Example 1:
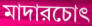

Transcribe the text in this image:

মাদারচোৎ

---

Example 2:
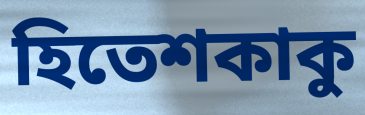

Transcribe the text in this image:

হিতেশকাকু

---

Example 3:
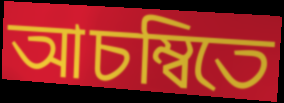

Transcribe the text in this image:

আচম্বিতে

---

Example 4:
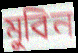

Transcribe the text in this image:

মুবিন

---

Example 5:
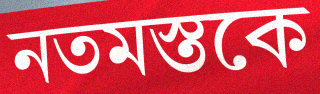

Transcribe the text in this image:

নতমস্তকে